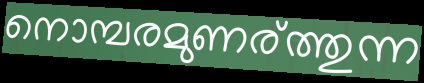
നൊമ്പരമുണര്ത്തുന്ന